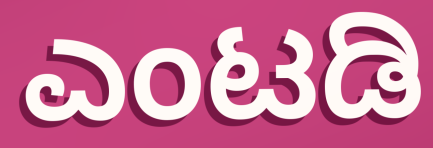
ಎಂಟಡಿ